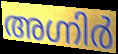
അഗ്നിർ